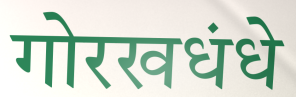
गोरखधंधे